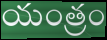
యంత్రం